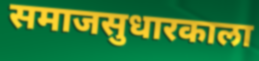
समाजसुधारकाला